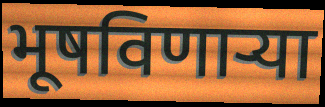
भूषविणार्‍या